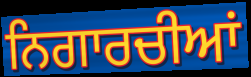
ਨਿਗਾਰਚੀਆਂ